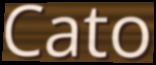
Cato